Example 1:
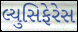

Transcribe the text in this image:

લ્યુસિફેરેસ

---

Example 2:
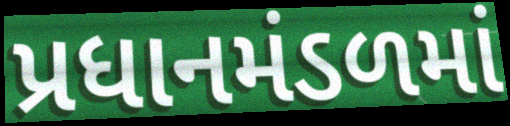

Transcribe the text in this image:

પ્રધાનમંડળમાં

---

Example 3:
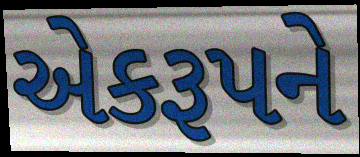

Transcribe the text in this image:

એકરૂપને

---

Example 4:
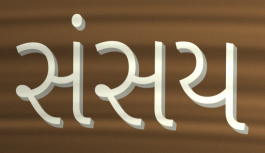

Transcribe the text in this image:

સંસય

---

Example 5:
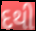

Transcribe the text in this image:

દથી